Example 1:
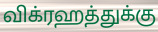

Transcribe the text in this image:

விக்ரஹத்துக்கு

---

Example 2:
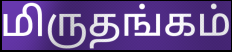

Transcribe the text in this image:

மிருதங்கம்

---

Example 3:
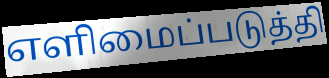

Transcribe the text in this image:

எளிமைப்படுத்தி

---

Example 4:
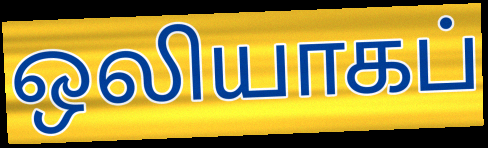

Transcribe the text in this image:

ஒலியாகப்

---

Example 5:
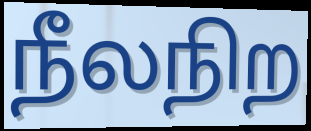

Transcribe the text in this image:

நீலநிற